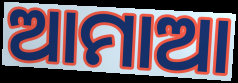
ଆମାଆ